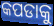
କପଡାକୁ